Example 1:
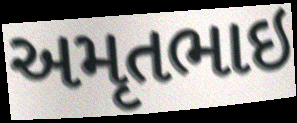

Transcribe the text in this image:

અમૃતભાઇ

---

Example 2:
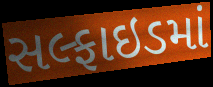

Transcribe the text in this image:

સલ્ફાઇડમાં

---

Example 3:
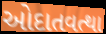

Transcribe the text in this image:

ઓદાતવત્થા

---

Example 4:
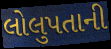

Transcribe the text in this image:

લોલુપતાની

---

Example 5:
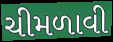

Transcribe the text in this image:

ચીમળાવી